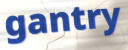
gantry